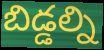
బిడ్డల్ని